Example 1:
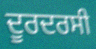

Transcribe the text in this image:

ਦੂਰਦਰਸੀ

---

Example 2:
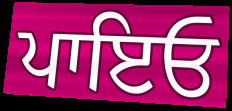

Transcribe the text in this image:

ਪਾਇਓ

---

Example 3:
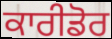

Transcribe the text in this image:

ਕਾਰੀਡੋਰ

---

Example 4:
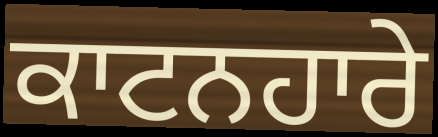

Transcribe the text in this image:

ਕਾਟਨਹਾਰੇ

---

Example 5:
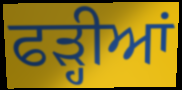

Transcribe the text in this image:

ਫੜ੍ਹੀਆਂ